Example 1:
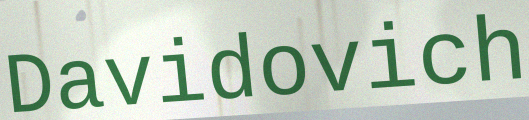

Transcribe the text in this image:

Davidovich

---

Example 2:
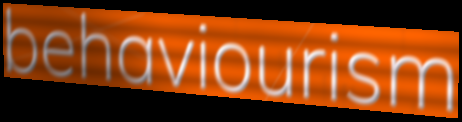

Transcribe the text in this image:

behaviourism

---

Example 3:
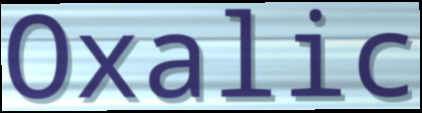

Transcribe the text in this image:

Oxalic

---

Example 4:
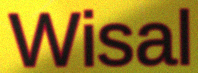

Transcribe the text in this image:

Wisal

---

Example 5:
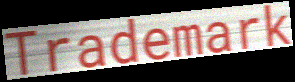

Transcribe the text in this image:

Trademark